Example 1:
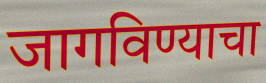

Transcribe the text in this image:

जागविण्याचा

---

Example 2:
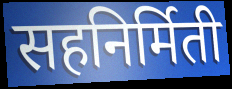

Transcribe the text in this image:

सहनिर्मिती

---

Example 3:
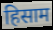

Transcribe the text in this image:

हिसाम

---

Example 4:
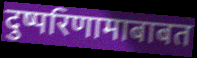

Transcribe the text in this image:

दुष्परिणामाबाबत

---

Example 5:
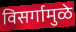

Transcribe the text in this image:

विसर्गामुळे